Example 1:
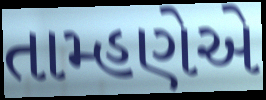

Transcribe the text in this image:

તામ્હણેએ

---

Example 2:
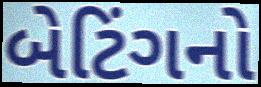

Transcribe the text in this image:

બેટિંગનો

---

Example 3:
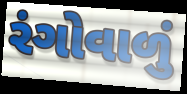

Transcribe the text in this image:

રંગોવાળું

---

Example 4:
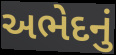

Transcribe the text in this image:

અભેદનું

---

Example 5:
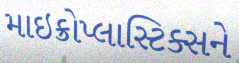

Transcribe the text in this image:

માઇક્રોપ્લાસ્ટિક્સને